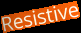
Resistive